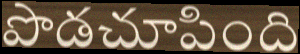
పొడచూపింది